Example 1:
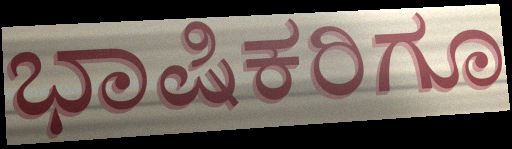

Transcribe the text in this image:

ಭಾಷಿಕರಿಗೂ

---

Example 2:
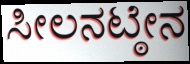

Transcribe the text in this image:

ಸೀಲನಟ್ಠೇನ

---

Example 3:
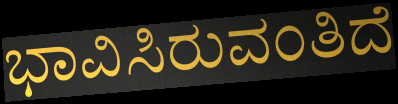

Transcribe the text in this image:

ಭಾವಿಸಿರುವಂತಿದೆ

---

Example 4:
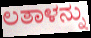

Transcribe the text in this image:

ಲತಾಳನ್ನು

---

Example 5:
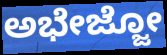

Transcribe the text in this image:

ಅಭೇಜ್ಜೋ